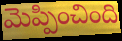
మెప్పించింది